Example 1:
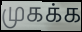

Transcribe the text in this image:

முகக்க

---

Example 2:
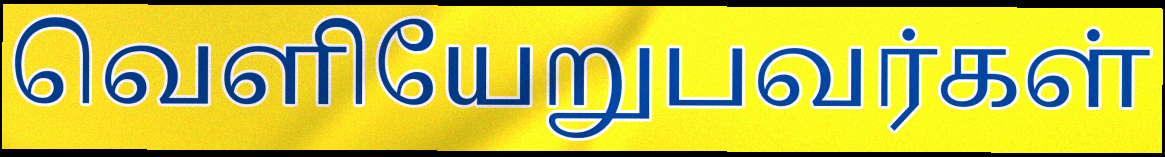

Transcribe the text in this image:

வெளியேறுபவர்கள்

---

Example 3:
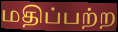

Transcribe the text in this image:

மதிப்பற்ற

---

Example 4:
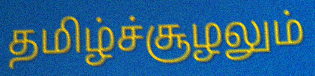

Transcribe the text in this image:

தமிழ்ச்சூழலும்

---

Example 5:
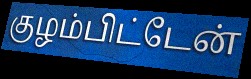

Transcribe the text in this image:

குழம்பிட்டேன்